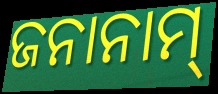
ଜନାନାମ୍